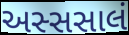
અસ્સસાલં